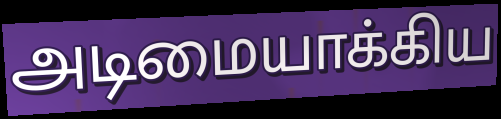
அடிமையாக்கிய